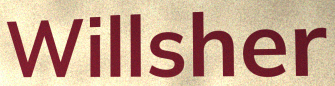
Willsher